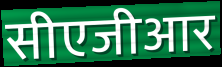
सीएजीआर